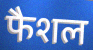
फैशल